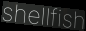
shellfish